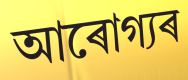
আৰোগ্যৰ